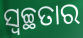
ସ୍ଵଚ୍ଛତାର